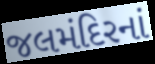
જલમંદિરનાં